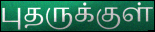
புதருக்குள்